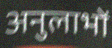
अनुलाभों